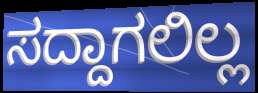
ಸದ್ದಾಗಲಿಲ್ಲ